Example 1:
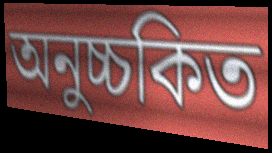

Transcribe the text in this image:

অনুচ্চকিত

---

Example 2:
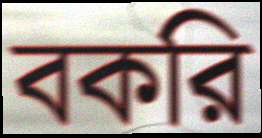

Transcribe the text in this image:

বকরি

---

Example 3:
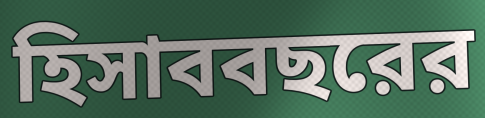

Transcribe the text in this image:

হিসাববছরের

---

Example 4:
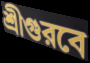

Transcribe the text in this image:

শ্রীগুরবে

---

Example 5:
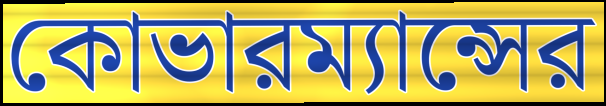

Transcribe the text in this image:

কোভারম্যান্সের